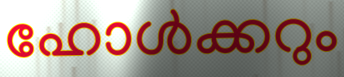
ഹോൾക്കറും